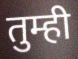
तुम्ही